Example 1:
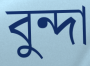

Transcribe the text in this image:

বুন্দা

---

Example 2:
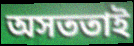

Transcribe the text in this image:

অসততাই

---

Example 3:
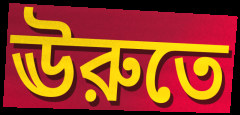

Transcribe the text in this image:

ঊরুতে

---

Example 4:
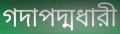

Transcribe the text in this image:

গদাপদ্মধারী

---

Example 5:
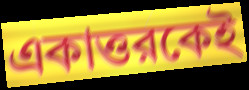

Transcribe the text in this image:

একাত্তরকেই